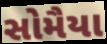
સોમૈયા